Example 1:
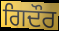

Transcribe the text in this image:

ਗਿਦੌਰ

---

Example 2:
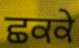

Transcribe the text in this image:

ਛਕਕੇ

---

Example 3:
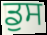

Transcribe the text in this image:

ਡੁਸ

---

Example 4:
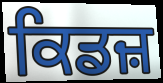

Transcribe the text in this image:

ਕਿਡਜ਼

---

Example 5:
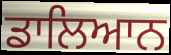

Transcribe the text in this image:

ਡਾਲਿਆਨ